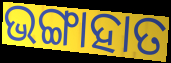
ଭଙ୍ଗାହାତ